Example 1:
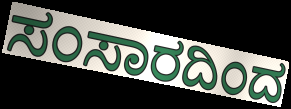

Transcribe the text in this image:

ಸಂಸಾರದಿಂದ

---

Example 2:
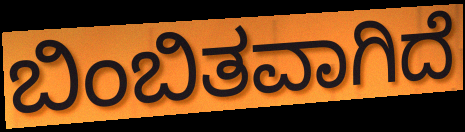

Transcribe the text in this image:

ಬಿಂಬಿತವಾಗಿದೆ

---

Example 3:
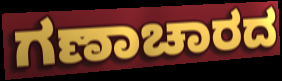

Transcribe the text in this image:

ಗಣಾಚಾರದ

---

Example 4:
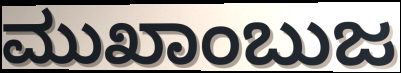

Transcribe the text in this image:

ಮುಖಾಂಬುಜ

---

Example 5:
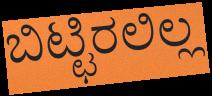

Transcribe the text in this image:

ಬಿಟ್ಟಿರಲಿಲ್ಲ